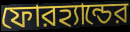
ফোরহ্যান্ডের